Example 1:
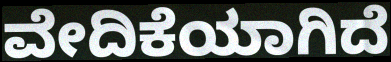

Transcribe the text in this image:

ವೇದಿಕೆಯಾಗಿದೆ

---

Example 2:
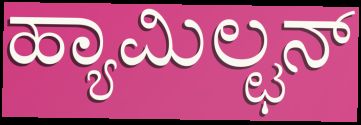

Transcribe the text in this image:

ಹ್ಯಾಮಿಲ್ಟನ್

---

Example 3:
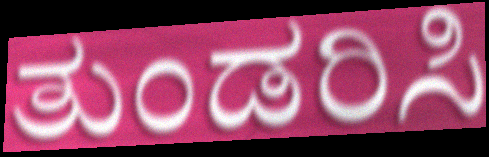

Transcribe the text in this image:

ತುಂಡರಿಸಿ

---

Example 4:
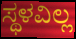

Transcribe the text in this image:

ಸ್ಥಳವಿಲ್ಲ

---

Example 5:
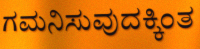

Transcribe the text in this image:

ಗಮನಿಸುವುದಕ್ಕಿಂತ